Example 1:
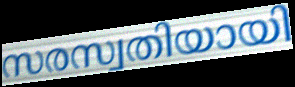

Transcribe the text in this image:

സരസ്വതിയായി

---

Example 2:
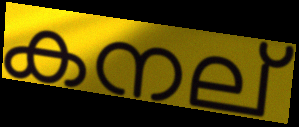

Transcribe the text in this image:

കനല്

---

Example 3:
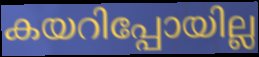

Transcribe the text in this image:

കയറിപ്പോയില്ല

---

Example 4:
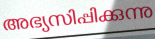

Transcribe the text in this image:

അഭ്യസിപ്പിക്കുന്നു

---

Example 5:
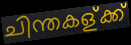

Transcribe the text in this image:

ചിന്തകള്ക്ക്